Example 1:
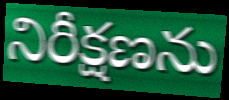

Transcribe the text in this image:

నిరీక్షణను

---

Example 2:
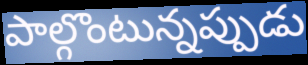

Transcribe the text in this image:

పాల్గొంటున్నప్పుడు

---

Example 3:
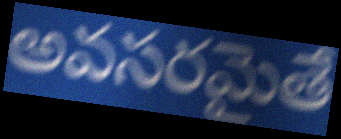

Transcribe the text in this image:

అవసరమైతే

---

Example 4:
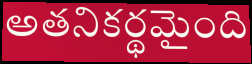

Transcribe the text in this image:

అతనికర్థమైంది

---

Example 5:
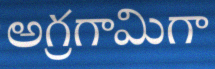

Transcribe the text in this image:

అగ్రగామిగా